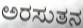
ಅರಸುತನ